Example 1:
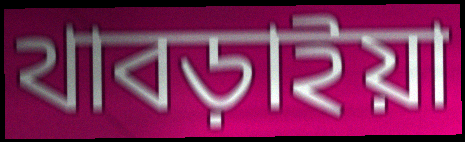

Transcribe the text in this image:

থাবড়াইয়া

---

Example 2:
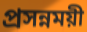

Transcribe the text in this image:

প্রসন্নময়ী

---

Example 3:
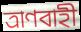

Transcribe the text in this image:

ত্রাণবাহী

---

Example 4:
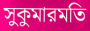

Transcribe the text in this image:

সুকুমারমতি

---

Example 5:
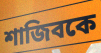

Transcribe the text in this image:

শাজিবকে